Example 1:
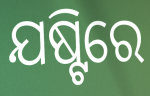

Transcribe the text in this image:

ଯଷ୍ଟିରେ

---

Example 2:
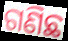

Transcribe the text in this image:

ଗଣିଛ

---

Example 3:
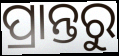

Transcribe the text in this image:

ପ୍ରାନ୍ତରୁ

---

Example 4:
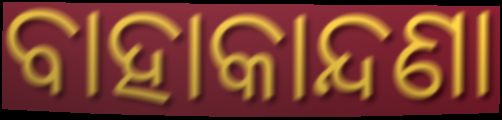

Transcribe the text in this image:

ବାହାକାନ୍ଦଣା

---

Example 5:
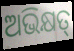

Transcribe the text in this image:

ଅଭିକ୍ଷତ୍